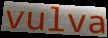
vulva